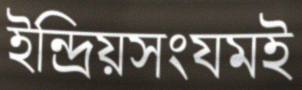
ইন্দ্রিয়সংযমই